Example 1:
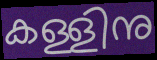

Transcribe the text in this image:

കള്ളിനു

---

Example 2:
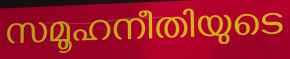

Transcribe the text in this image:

സമൂഹനീതിയുടെ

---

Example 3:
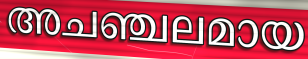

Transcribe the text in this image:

അചഞ്ചലമായ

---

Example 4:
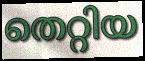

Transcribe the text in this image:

തെറ്റിയ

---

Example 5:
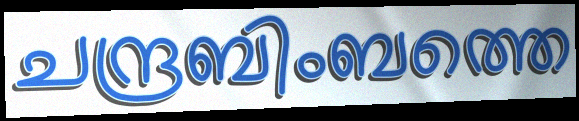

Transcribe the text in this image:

ചന്ദ്രബിംബത്തെ